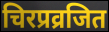
चिरप्रव्रजित